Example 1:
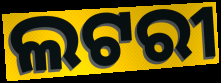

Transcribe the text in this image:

ଲଟରୀ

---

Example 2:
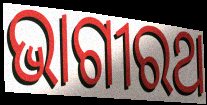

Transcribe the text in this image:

ଭାଗୀରଥ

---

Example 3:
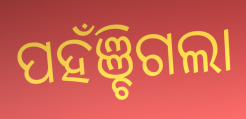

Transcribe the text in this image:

ପହଁଞ୍ଚିଗଲା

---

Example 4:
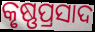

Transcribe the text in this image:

କୃଷ୍ଣପ୍ରସାଦ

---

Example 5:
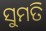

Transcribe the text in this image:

ସୁମତି